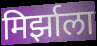
मिर्झाला